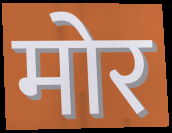
मोर